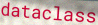
dataclass